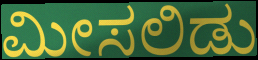
ಮೀಸಲಿಡು